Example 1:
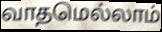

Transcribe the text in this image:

வாதமெல்லாம்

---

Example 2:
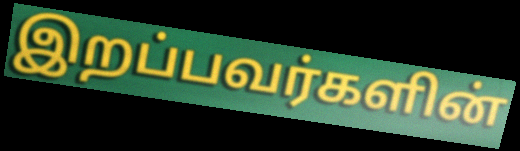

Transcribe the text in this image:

இறப்பவர்களின்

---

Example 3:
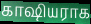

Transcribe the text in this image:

காஷியராக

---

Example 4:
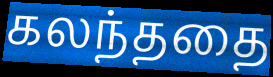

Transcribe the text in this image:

கலந்ததை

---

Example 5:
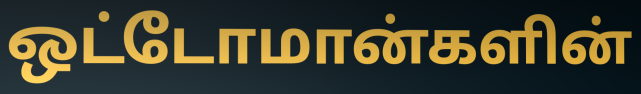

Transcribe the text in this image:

ஒட்டோமான்களின்